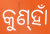
କୁଣ୍‌ହାଁ